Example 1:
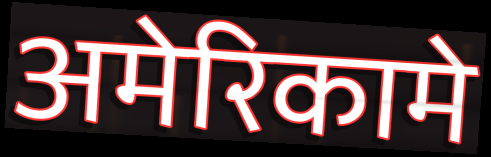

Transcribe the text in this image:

अमेरिकामे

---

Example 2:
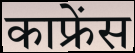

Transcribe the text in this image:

काफ्रेंस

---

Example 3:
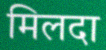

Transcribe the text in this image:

मिलदा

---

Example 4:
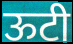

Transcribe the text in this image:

ऊटी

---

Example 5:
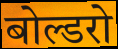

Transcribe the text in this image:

बोल्डरो